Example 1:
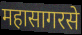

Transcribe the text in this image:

महासागरसे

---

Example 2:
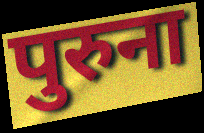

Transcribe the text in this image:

पुरुना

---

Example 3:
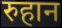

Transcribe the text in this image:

रुहान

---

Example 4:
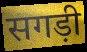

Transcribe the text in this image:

सगड़ी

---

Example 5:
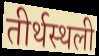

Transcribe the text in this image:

तीर्थस्थली